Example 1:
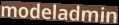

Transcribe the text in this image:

modeladmin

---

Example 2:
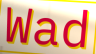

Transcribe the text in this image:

Wad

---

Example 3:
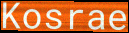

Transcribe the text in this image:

Kosrae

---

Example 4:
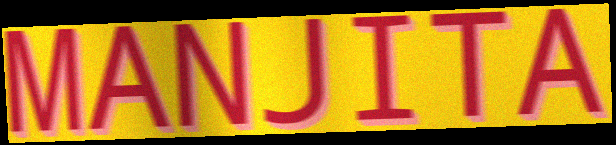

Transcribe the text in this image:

MANJITA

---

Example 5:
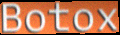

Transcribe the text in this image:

Botox